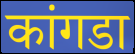
कांगडा